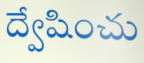
ద్వేషించు